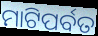
ମାଟିପର୍ବତ